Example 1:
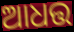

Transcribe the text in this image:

ଆଧତ୍ତ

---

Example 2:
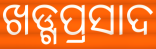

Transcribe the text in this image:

ଖଡ୍ଗପ୍ରସାଦ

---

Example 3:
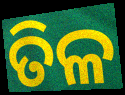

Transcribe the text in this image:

ତିଳ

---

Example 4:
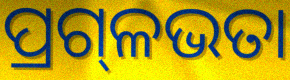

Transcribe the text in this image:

ପ୍ରଗ୍‍ଳଭତା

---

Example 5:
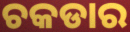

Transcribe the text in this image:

ଚକଡାର